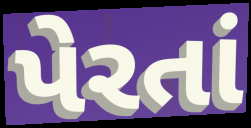
પેરતાં